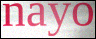
nayo